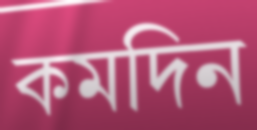
কমদিন